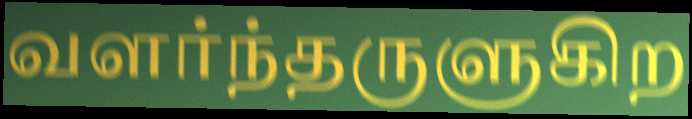
வளர்ந்தருளுகிற